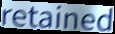
retained